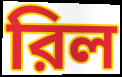
রিল